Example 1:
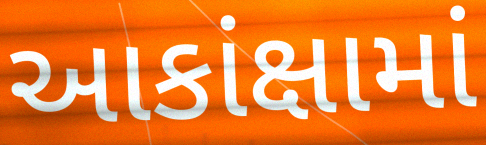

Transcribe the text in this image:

આકાંક્ષામાં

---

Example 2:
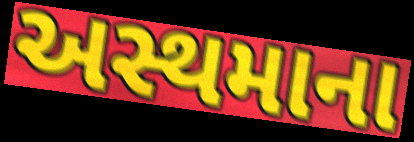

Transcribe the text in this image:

અસ્થમાના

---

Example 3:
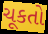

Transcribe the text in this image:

ચૂકતો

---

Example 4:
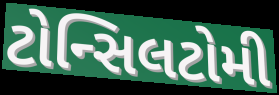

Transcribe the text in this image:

ટોન્સિલટોમી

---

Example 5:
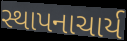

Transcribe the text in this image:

સ્થાપનાચાર્ય